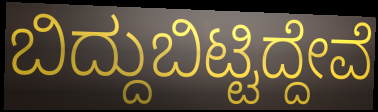
ಬಿದ್ದುಬಿಟ್ಟಿದ್ದೇವೆ